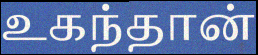
உகந்தான்